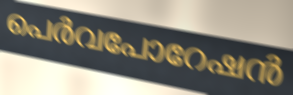
പെർവപോറേഷൻ